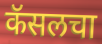
कॅसलचा